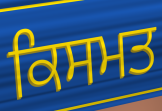
ਕਿਸਮਤ